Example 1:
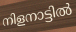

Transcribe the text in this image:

നിളനാട്ടിൽ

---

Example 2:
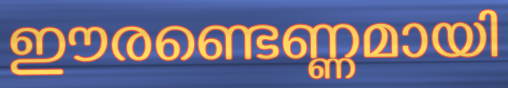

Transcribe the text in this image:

ഈരണ്ടെണ്ണമായി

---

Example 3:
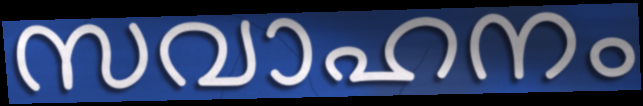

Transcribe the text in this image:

സവാഹനം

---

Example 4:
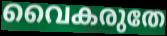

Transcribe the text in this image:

വൈകരുതേ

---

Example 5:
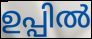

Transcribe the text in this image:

ഉപ്പിൽ